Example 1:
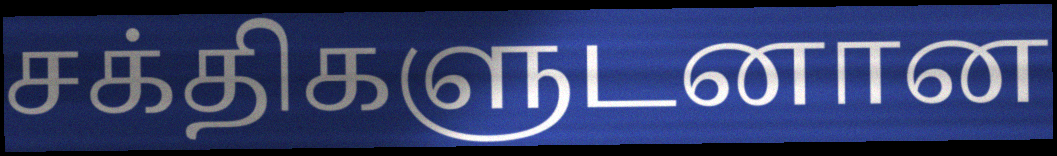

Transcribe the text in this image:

சக்திகளுடனான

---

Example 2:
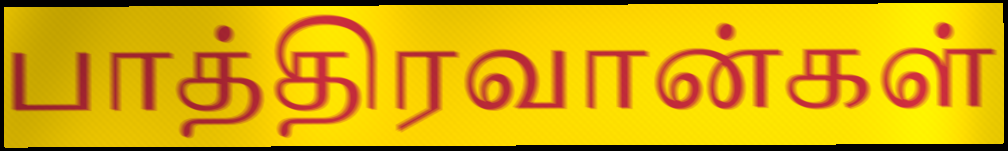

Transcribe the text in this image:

பாத்திரவான்கள்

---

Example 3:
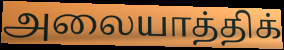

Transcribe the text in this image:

அலையாத்திக்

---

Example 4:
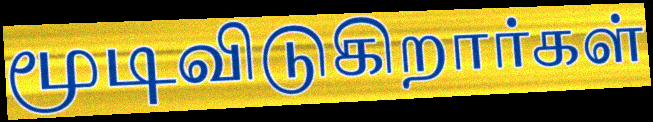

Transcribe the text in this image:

மூடிவிடுகிறார்கள்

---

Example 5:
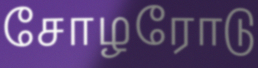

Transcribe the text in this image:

சோழரோடு